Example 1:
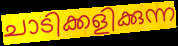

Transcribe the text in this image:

ചാടിക്കളിക്കുന്ന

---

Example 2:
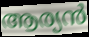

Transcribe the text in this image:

ആര്യൻ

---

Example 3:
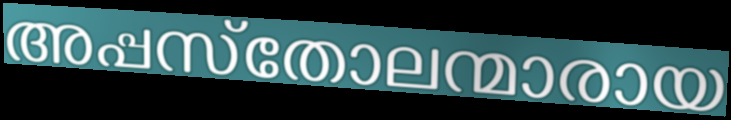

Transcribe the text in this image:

അപ്പസ്‌തോലന്മാരായ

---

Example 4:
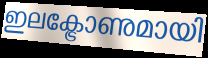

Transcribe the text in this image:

ഇലക്ട്രോണുമായി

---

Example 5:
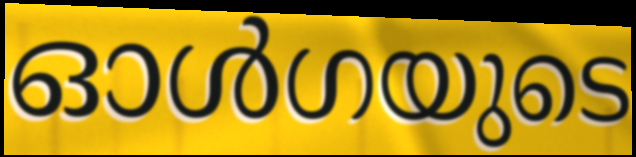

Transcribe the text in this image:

ഓൾഗയുടെ